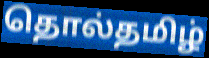
தொல்தமிழ்